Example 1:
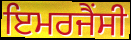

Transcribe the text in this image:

ਇਮਰਜੈਂਸੀ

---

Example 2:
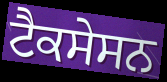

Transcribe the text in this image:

ਟੈਕਸੇਸਨ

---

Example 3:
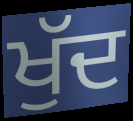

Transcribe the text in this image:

ਖੁੱਦ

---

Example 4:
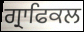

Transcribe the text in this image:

ਗ੍ਰਾਫਿਕਲ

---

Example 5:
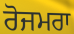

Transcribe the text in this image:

ਰੋਜਮਰਾ